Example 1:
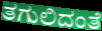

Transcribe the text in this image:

ತಗುಲಿದಂತೆ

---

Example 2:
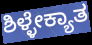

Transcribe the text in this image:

ಶಿಳ್ಳೇಕ್ಯಾತ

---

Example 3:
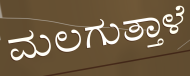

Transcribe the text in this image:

ಮಲಗುತ್ತಾಳೆ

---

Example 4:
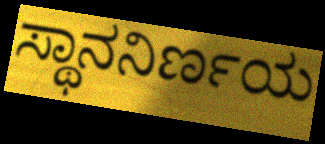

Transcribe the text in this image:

ಸ್ಥಾನನಿರ್ಣಯ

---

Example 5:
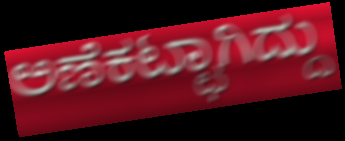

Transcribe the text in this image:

ಅಣೆಕಟ್ಟಾಗಿದ್ದು